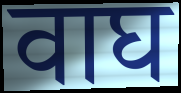
वाघ